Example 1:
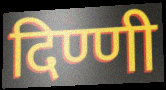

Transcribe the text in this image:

दिण्णी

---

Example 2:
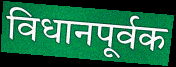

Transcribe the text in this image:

विधानपूर्वक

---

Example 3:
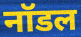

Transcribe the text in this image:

नॉडल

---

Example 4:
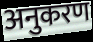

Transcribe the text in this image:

अनुकरण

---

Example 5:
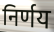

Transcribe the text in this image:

निर्णय